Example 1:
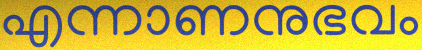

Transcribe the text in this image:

എന്നാണനുഭവം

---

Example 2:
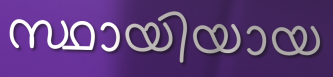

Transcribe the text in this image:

സ്ഥായിയായ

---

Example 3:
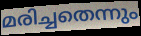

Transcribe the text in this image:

മരിച്ചതെന്നും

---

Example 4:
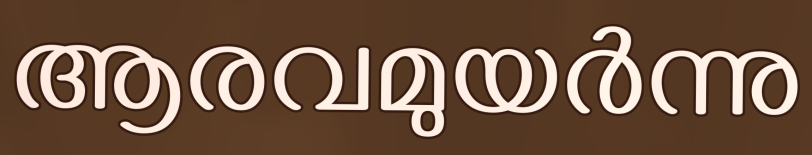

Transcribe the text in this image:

ആരവമുയർന്നു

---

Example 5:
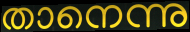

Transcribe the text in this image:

താനെന്നു